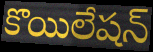
కొయిలేషన్